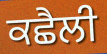
ਕਛੈਲੀ